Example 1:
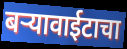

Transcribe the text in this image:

बऱ्यावाईटाचा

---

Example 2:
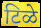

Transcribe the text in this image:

टिळे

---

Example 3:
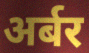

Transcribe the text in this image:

अर्बर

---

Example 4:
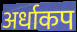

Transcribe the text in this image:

अर्धाकप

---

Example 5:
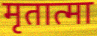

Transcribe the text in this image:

मृतात्मा